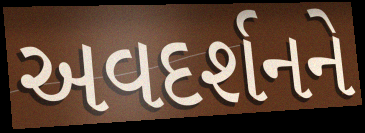
અવદર્શનને